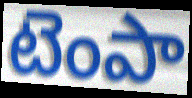
టెంపా